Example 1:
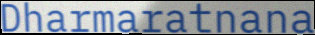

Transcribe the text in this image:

Dharmaratnana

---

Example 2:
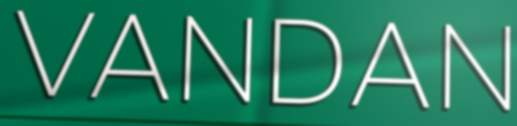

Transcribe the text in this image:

VANDAN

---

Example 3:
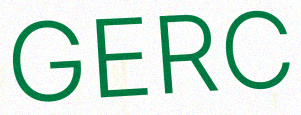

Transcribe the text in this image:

GERC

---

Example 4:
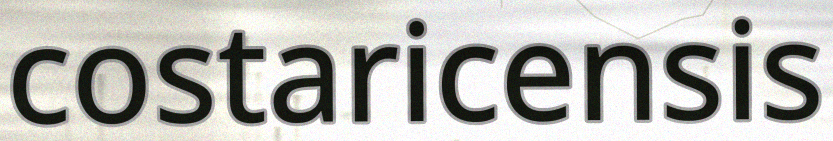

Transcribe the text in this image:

costaricensis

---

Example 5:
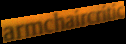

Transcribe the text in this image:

armchaircritic